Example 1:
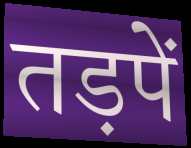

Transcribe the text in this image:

तड़पें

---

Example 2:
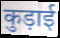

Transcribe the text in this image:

कुड़ाई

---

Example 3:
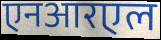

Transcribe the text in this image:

एनआरएल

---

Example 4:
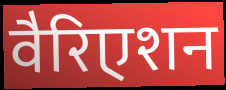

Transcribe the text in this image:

वैरिएशन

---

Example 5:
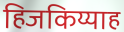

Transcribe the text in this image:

हिजकिय्याह